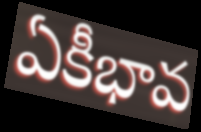
ఏకీభావ